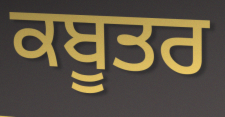
ਕਬੂਤਰ